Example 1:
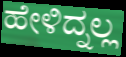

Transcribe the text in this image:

ಹೇಳಿದ್ನಲ್ಲ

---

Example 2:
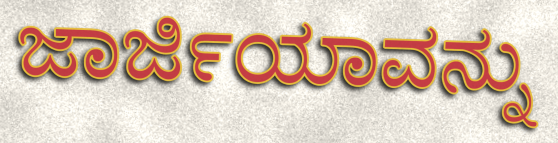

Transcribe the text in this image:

ಜಾರ್ಜಿಯಾವನ್ನು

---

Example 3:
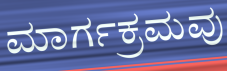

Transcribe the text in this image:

ಮಾರ್ಗಕ್ರಮವು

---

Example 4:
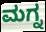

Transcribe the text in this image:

ಮಗ್ನ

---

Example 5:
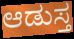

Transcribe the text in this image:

ಆಡುಸ್ತ